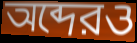
অব্দেরও